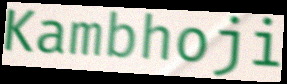
Kambhoji